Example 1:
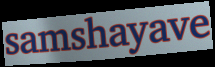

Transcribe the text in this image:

samshayave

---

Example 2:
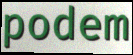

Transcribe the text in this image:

podem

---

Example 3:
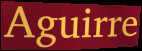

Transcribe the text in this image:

Aguirre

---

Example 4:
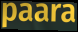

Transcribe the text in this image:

paara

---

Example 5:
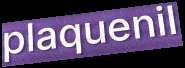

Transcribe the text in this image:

plaquenil